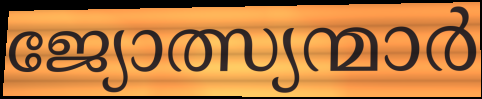
ജ്യോത്സ്യന്മാർ